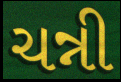
ચન્ની